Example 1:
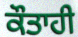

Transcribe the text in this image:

ਕੌਤਾਹੀ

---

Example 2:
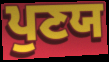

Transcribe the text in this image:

ਪੁਣਯ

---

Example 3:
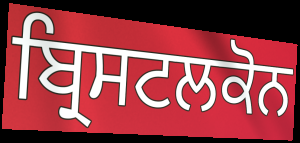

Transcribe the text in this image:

ਬ੍ਰਿਸਟਲਕੋਨ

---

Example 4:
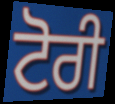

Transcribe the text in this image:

ਟੋਰੀ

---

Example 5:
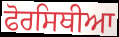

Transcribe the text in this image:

ਫੋਰਸਿਥੀਆ